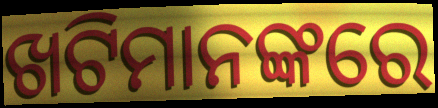
ଖଟିମାନଙ୍କରେ